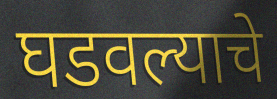
घडवल्याचे